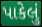
પાકેલું